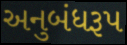
અનુબંધરૂપ